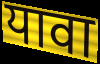
यावा